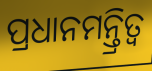
ପ୍ରଧାନମନ୍ତ୍ରିତ୍ଵ